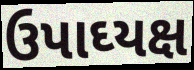
ઉપાઘ્યક્ષ